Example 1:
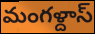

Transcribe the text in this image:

మంగళ్దాస్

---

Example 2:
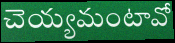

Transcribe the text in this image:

చెయ్యమంటావో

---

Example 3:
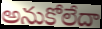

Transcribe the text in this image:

అనుకోలేదా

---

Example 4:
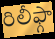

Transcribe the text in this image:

రిలీఫ్గా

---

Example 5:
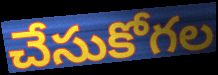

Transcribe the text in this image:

చేసుకోగల